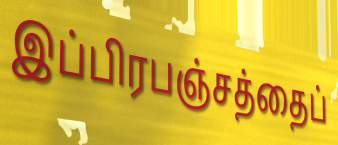
இப்பிரபஞ்சத்தைப்